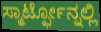
ಸ್ಮಾರ್ಟ್ಫೋನ್ನಲ್ಲಿ